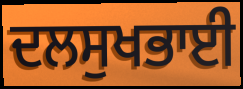
ਦਲਸੁਖਭਾਈ